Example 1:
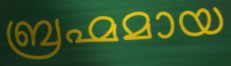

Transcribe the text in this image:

ബ്രഹ്മമായ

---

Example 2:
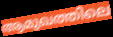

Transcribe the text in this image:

ആമുഖത്തിലെ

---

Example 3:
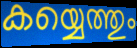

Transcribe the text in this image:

കയ്യെത്തും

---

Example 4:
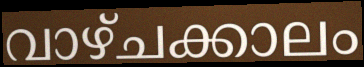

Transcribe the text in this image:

വാഴ്ചക്കാലം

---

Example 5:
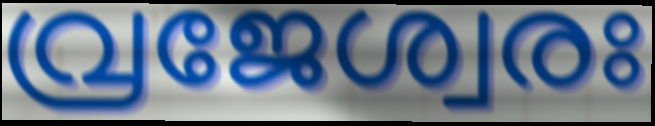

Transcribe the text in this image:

വ്രജേശ്വരഃ